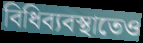
বিধিব্যবস্থাতেও